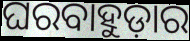
ଘରବାହୁଡ଼ାର